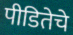
पीडितेचे